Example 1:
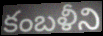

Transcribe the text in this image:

కంబళీని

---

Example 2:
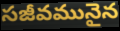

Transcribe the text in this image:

సజీవమునైన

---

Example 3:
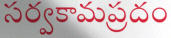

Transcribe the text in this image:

సర్వకామప్రదం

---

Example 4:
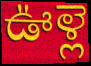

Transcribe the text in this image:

ఊళ్లె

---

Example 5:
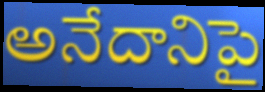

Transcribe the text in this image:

అనేదానిపై